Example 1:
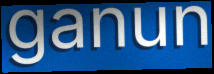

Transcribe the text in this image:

ganun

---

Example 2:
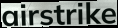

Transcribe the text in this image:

airstrike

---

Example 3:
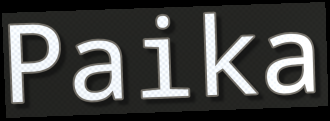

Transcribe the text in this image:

Paika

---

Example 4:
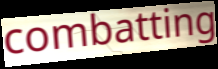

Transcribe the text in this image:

combatting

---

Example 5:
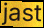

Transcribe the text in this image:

jast